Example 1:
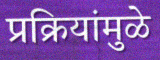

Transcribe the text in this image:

प्रक्रियांमुळे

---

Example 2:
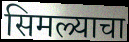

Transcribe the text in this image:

सिमल्याचा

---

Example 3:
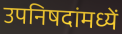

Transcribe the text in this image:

उपनिषदांमध्यें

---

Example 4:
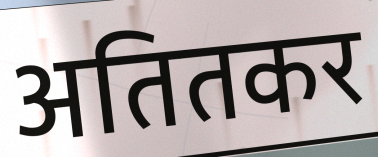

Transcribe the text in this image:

अतितकर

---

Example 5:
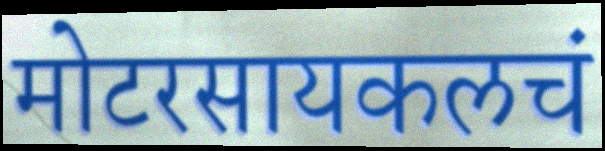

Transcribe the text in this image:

मोटरसायकलचं